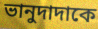
ভানুদাদাকে